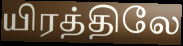
யிரத்திலே